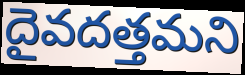
దైవదత్తమని